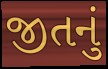
જીતનું